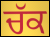
ਚੱਕ